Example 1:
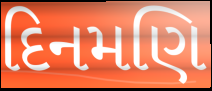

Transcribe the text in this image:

દિનમણિ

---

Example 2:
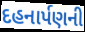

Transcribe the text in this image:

દહનાર્પણની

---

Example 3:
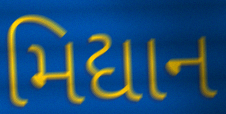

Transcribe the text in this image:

મિદ્યાન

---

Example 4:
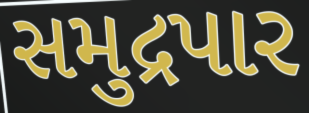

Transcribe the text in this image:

સમુદ્રપાર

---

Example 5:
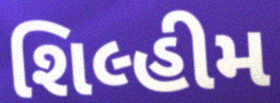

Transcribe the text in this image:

શિલ્હીમ